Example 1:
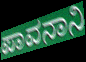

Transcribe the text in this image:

ಪಾವನಾನಿ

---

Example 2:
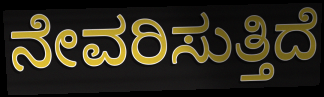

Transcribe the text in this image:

ನೇವರಿಸುತ್ತಿದೆ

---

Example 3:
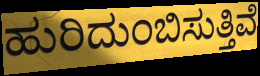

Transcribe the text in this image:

ಹುರಿದುಂಬಿಸುತ್ತಿವೆ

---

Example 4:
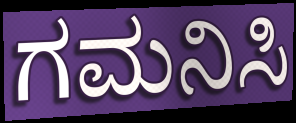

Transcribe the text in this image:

ಗಮನಿಸಿ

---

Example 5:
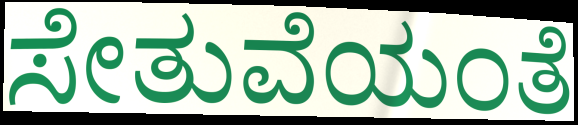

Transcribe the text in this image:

ಸೇತುವೆಯಂತೆ